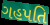
ગહપતિ